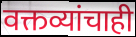
वक्तव्यांचाही